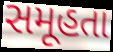
સમૂહતા